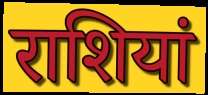
राशियां